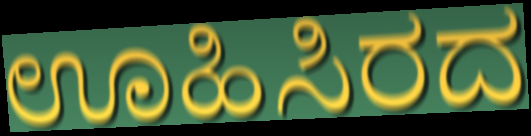
ಊಹಿಸಿರದ